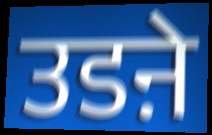
उडऩे